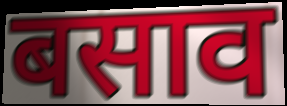
बसाव